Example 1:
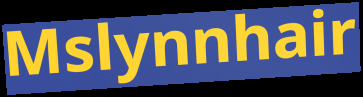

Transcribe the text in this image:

Mslynnhair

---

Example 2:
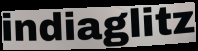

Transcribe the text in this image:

indiaglitz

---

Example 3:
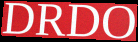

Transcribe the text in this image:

DRDO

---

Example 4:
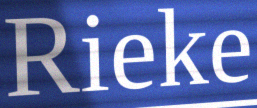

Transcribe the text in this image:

Rieke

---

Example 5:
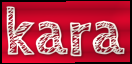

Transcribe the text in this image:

kara